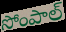
సోంపాల్